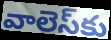
వాలెస్‌కు